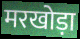
मरखोड़ा